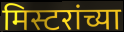
मिस्टरांच्या